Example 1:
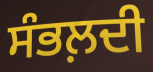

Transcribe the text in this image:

ਸੰਭਲ਼ਦੀ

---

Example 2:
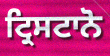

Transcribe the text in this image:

ਟ੍ਰਿਸਟਾਨੋ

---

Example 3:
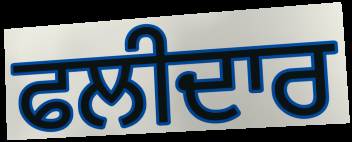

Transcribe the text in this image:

ਫਲੀਦਾਰ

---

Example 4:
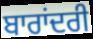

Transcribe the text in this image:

ਬਾਰਾਂਦਰੀ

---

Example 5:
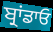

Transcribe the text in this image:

ਬ੍ਰਾਂਡਾਓ